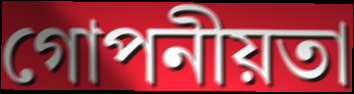
গোপনীয়তা